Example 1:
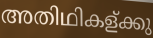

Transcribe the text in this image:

അതിഥികള്ക്കു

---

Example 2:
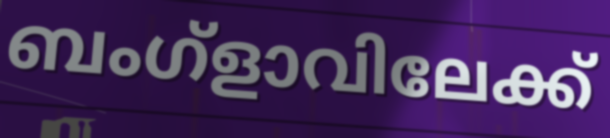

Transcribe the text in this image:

ബംഗ്ളാവിലേക്ക്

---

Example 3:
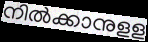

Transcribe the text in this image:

നിൽക്കാനുളള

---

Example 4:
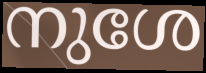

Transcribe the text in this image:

നുശേ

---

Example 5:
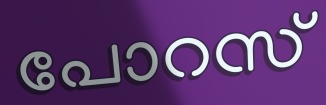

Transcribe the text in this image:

പോറസ്